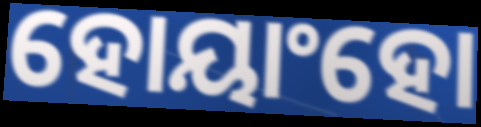
ହୋୟାଂହୋ